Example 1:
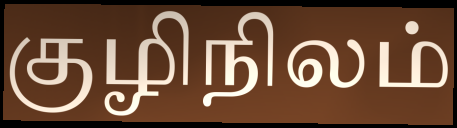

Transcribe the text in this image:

குழிநிலம்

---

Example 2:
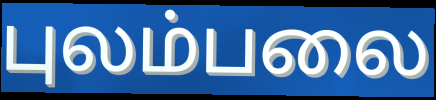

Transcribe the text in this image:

புலம்பலை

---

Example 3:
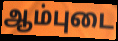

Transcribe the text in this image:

ஆம்புடை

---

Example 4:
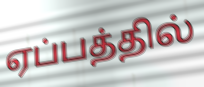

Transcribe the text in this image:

ஏப்பத்தில்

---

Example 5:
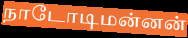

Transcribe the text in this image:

நாடோடிமன்னன்